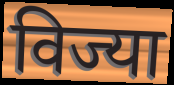
विज्या